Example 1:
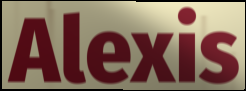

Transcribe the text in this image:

Alexis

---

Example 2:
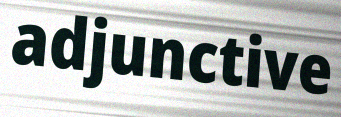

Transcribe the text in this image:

adjunctive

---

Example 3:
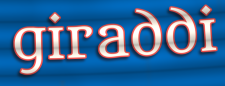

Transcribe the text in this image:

giraddi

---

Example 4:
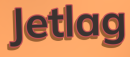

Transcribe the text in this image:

Jetlag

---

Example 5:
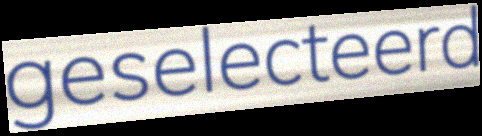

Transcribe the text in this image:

geselecteerd